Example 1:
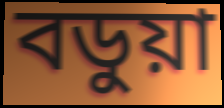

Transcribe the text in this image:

বডুয়া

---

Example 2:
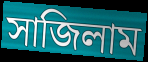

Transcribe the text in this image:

সাজিলাম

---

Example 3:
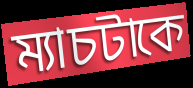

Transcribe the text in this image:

ম্যাচটাকে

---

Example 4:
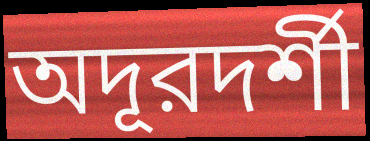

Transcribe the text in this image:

অদূরদর্শী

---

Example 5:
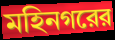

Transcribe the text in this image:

মহিনগরের